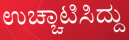
ಉಚ್ಚಾಟಿಸಿದ್ದು